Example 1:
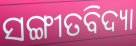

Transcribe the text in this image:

ସଙ୍ଗୀତବିଦ୍ୟା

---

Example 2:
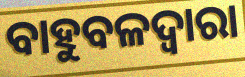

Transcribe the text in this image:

ବାହୁବଳଦ୍ୱାରା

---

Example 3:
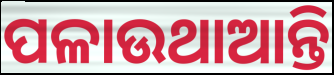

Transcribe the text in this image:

ପଳାଉଥାଆନ୍ତି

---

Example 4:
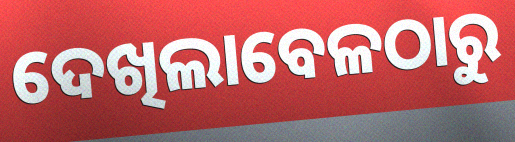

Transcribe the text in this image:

ଦେଖିଲାବେଳଠାରୁ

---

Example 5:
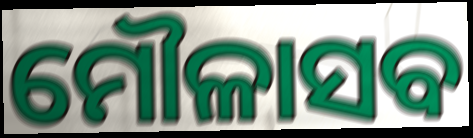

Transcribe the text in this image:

ମୌଳାସବ